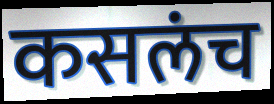
कसलंच